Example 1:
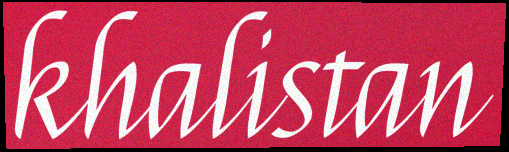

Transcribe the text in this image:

khalistan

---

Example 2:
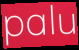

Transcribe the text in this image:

palu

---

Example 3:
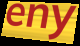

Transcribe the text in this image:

eny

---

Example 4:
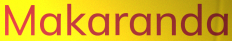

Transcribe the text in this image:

Makaranda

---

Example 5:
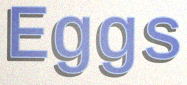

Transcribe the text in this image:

Eggs